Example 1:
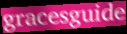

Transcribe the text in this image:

gracesguide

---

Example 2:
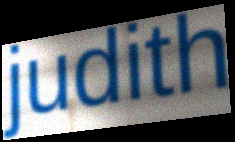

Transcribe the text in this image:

judith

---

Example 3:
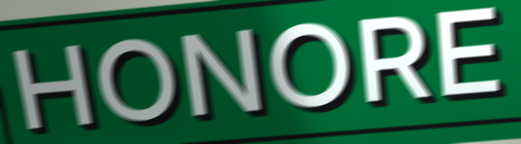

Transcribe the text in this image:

HONORE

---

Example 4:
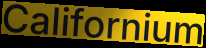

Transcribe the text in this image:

Californium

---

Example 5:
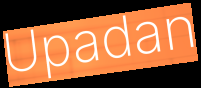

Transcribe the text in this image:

Upadan